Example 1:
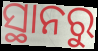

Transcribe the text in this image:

ସ୍ଥାନରୁ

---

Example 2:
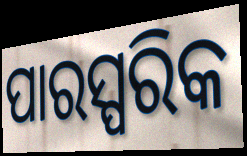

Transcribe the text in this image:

ପାରସ୍ପରିକ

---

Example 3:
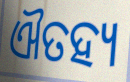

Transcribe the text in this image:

ଐତହ୍ୟ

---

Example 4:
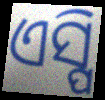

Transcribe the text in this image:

ଏସ୍ପି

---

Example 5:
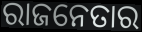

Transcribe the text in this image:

ରାଜନେତାର